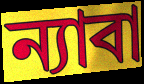
ন্যাবা